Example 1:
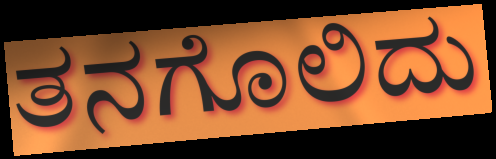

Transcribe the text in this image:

ತನಗೊಲಿದು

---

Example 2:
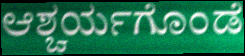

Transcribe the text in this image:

ಆಶ್ಚರ್ಯಗೊಂಡೆ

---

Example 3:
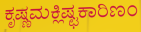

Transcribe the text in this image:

ಕೃಷ್ಣಮಕ್ಲಿಷ್ಟಕಾರಿಣಂ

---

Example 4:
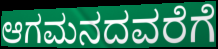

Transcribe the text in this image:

ಆಗಮನದವರೆಗೆ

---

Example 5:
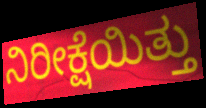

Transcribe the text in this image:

ನಿರೀಕ್ಷೆಯಿತ್ತು